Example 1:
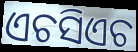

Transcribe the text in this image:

ଏଚସିଏଚ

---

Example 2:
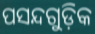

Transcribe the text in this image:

ପସନ୍ଦଗୁଡ଼ିକ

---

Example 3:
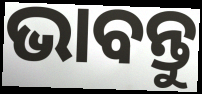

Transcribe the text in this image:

ଭାବନ୍ତୁ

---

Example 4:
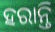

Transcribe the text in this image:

ହରାନ୍ତି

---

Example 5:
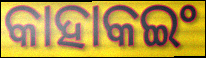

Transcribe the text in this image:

କାହାକଇଂ